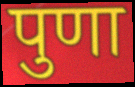
पुणा